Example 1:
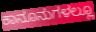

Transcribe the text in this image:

ಕಾನೂನುಗಳಲ್ಲೂ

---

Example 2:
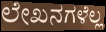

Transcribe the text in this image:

ಲೇಖನಗಳೆಲ್ಲ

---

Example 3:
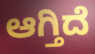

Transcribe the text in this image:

ಆಗ್ತಿದೆ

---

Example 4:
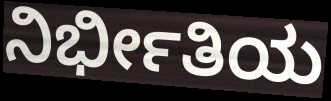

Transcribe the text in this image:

ನಿರ್ಭೀತಿಯ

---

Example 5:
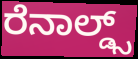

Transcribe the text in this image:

ರೆನಾಲ್ಡ್ಸ್